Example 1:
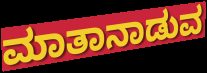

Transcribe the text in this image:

ಮಾತಾನಾಡುವ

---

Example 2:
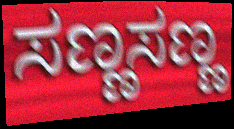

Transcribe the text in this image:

ಸಣ್ಣಸಣ್ಣ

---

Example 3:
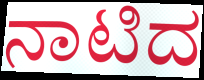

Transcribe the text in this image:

ನಾಟಿದ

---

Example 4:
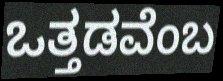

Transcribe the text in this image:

ಒತ್ತಡವೆಂಬ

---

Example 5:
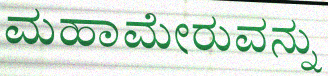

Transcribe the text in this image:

ಮಹಾಮೇರುವನ್ನು